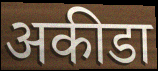
अकीडा